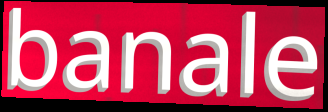
banale